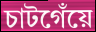
চাটগেঁয়ে